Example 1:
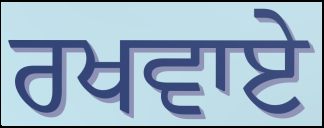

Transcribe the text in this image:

ਰਖਵਾਏ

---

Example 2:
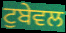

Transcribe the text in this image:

ਟੁਬੇਵਲ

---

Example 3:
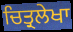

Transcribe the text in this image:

ਚਿਤ੍ਰਲੇਖਾ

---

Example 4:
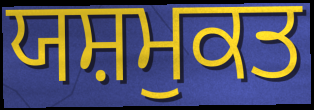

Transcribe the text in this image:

ਯਸ਼ਮੁਕਤ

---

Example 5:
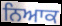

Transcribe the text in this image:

ਨਿਆਕ